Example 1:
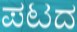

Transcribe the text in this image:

ಪಟದ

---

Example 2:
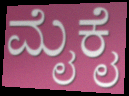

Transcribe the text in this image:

ಮೈಕೈ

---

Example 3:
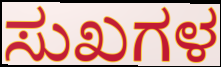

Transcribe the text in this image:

ಸುಖಗಳ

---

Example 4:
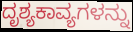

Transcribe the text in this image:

ದೃಶ್ಯಕಾವ್ಯಗಳನ್ನು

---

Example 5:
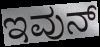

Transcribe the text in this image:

ಇವುನ್